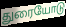
துரையோடு